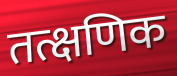
तत्क्षणिक